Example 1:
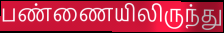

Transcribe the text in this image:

பண்ணையிலிருந்து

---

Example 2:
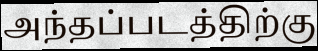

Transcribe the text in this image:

அந்தப்படத்திற்கு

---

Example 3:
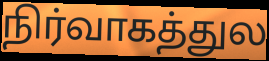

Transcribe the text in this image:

நிர்வாகத்துல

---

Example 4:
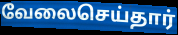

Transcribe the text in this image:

வேலைசெய்தார்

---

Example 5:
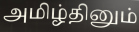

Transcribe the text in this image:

அமிழ்தினும்